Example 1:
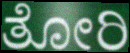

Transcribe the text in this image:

ತೋರಿ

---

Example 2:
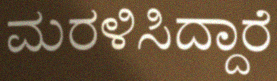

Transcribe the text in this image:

ಮರಳಿಸಿದ್ದಾರೆ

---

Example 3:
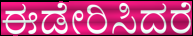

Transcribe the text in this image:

ಈಡೇರಿಸಿದರೆ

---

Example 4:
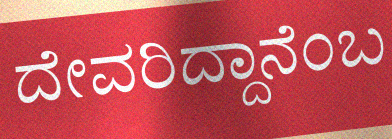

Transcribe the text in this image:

ದೇವರಿದ್ದಾನೆಂಬ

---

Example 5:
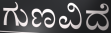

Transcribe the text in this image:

ಗುಣವಿದೆ